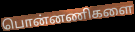
பொன்னணிகளை